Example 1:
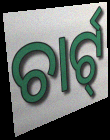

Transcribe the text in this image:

ଚାର୍ଟ୍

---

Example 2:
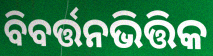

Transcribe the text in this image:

ବିବର୍ତ୍ତନଭିତ୍ତିକ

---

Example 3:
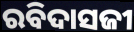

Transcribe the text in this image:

ରବିଦାସଜୀ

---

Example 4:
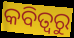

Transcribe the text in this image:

କବିତ୍ଵରୁ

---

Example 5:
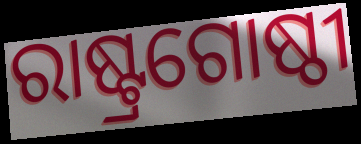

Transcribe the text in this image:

ରାଷ୍ଟ୍ରଗୋଷ୍ଠୀ